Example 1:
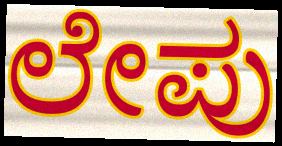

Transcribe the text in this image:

ಲೇಪು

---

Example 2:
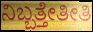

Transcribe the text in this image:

ನಿಬ್ಬತ್ತೇತೀತಿ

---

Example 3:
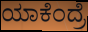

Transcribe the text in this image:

ಯಾಕೆಂದ್ರೆ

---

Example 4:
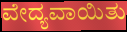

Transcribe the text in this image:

ವೇದ್ಯವಾಯಿತು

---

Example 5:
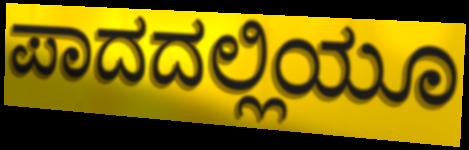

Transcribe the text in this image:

ಪಾದದಲ್ಲಿಯೂ